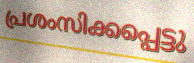
പ്രശംസിക്കപ്പെട്ടു